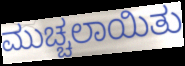
ಮುಚ್ಚಲಾಯಿತು